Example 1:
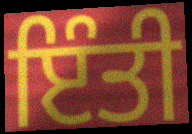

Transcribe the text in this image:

ਇੰਤੀ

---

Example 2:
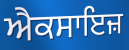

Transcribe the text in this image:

ਐਕਸਾਇਜ਼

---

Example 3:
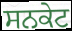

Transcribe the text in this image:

ਸਨਕੇਟ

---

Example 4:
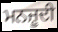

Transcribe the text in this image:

ਮਨਜ਼ੂਦੀ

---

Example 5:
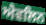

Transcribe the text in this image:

ਐਵਲਿਨ